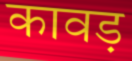
कावड़